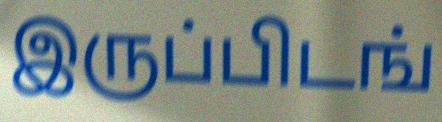
இருப்பிடங்